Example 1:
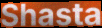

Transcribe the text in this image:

Shasta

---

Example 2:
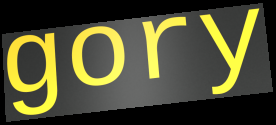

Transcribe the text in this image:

gory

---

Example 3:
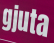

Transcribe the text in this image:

gjuta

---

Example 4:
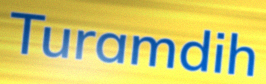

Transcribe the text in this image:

Turamdih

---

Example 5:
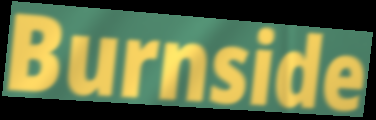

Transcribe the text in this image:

Burnside